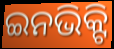
ଇନଭିକ୍ଟି